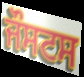
ਜੌਸਟਸ